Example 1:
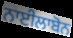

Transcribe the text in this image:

ਨਾਈਲਾਬੋਨ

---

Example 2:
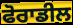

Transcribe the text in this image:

ਫੋਰਾਡੀਲ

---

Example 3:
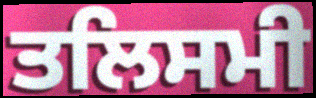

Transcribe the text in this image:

ਤਲਿਸਮੀ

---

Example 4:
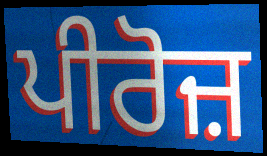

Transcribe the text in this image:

ਪੀਰੋਜ਼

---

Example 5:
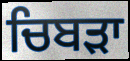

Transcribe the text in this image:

ਚਿਬੜਾ